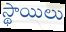
స్థాయిలు